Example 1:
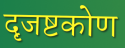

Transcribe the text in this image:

दृजष्टकोण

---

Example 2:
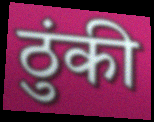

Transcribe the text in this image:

ठुंकी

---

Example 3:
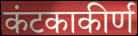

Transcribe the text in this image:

कंटकाकीर्ण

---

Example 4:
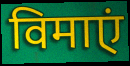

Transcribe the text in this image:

विमाएं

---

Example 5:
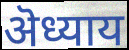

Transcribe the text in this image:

ऄध्याय